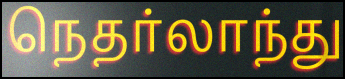
நெதர்லாந்து